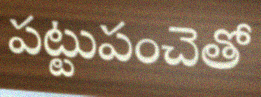
పట్టుపంచెతో